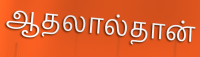
ஆதலால்தான்